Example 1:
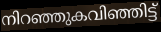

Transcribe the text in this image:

നിറഞ്ഞുകവിഞ്ഞിട്ട്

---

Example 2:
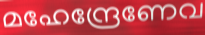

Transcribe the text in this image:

മഹേന്ദ്രേണേവ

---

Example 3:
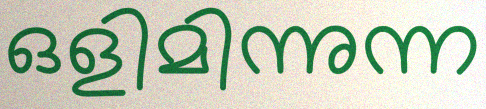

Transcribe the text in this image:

ഒളിമിന്നുന്ന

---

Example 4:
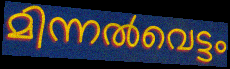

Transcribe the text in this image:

മിന്നൽവെട്ടം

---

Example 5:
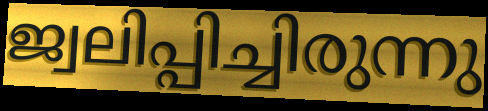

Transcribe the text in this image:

ജ്വലിപ്പിച്ചിരുന്നു